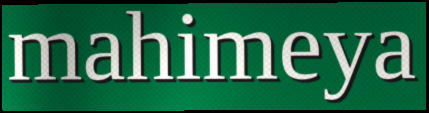
mahimeya